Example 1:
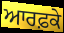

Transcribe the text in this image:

ਆਰਫ਼ਕੇ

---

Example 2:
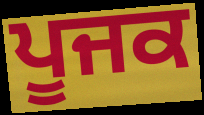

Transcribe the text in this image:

ਪੂਜਕ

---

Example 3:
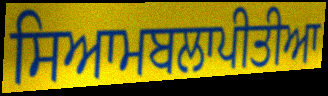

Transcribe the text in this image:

ਸਿਆਮਬਲਾਪੀਤੀਆ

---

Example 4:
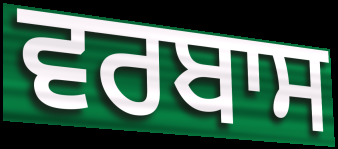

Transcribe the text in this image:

ਵਰਬਾਸ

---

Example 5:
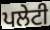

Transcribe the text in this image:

ਪਲੇਟੀ